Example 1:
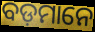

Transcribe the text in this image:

ବଡ଼ମାନେ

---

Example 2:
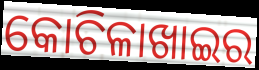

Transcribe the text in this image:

କୋଚିଳାଖାଇର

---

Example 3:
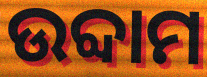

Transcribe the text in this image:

ଉବ୍ଦାମ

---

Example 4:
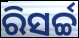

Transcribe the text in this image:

ରିସର୍ଚ୍ଚ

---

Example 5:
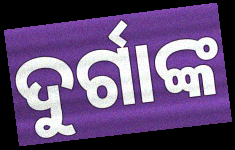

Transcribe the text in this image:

ଦୁର୍ଗାଙ୍କ